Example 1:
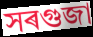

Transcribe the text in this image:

সৰগুজা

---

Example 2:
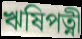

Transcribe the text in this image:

ঋষিপত্নী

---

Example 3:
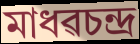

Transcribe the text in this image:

মাধৱচন্দ্ৰ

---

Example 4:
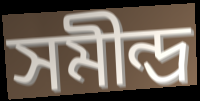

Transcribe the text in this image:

সমীন্দ্ৰ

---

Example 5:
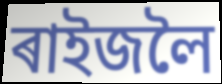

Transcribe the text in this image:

ৰাইজলৈ